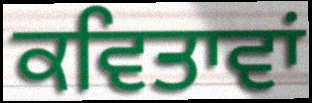
ਕਵਿਤਾਵਾਂ